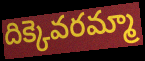
దిక్కెవరమ్మా